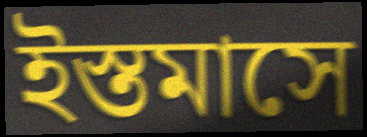
ইস্তমাসে